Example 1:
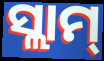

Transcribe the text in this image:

ସ୍ଲାମ୍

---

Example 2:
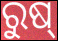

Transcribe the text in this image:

ରୁଷ୍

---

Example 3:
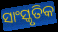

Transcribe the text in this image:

ସାଂସ୍କୃତିକ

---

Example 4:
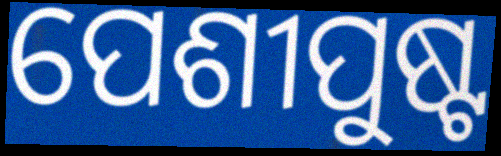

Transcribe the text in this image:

ପେଶୀପୁଷ୍ଟ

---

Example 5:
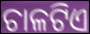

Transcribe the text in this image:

ଚାଳଟିଏ